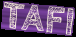
TAFI